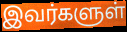
இவர்களுள்